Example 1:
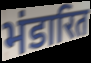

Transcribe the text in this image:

भंडारित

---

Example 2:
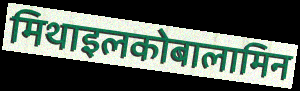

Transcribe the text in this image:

मिथाइलकोबालामिन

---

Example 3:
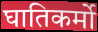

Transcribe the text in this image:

घातिकर्मो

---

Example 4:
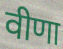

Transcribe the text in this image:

वीणा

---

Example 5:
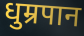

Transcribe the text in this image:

धुम्रपान